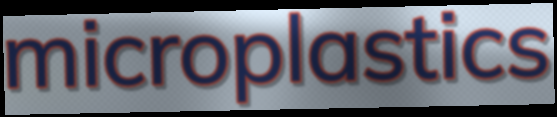
microplastics